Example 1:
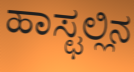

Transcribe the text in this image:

ಹಾಸ್ಟಲ್ಲಿನ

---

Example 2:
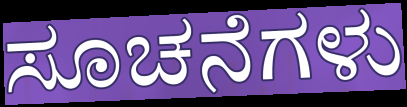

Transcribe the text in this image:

ಸೂಚನೆಗಳು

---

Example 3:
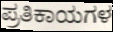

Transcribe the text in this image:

ಪ್ರತಿಕಾಯಗಳ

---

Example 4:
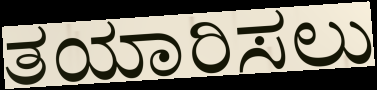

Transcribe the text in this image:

ತಯಾರಿಸಲು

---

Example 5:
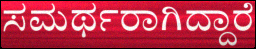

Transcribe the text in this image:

ಸಮರ್ಥರಾಗಿದ್ದಾರೆ